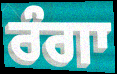
ਰੰਗਾ